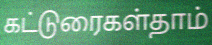
கட்டுரைகள்தாம்